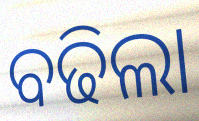
ବଢିଲା